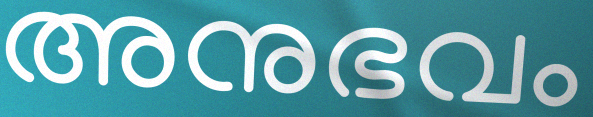
അനുഭവം